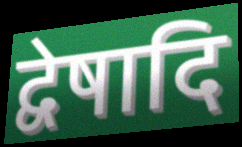
द्वेषादि